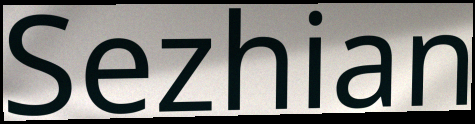
Sezhian